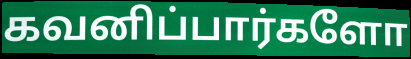
கவனிப்பார்களோ